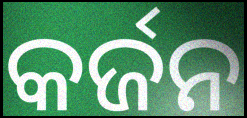
କର୍ଜନ